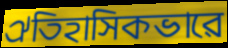
ঐতিহাসিকভাৱে